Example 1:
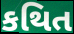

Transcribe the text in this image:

કથિત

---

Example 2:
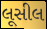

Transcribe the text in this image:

લૂસીલ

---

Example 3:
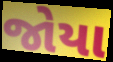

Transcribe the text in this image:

જોયા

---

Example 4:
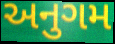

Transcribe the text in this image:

અનુગમ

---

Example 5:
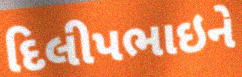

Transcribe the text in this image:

દિલીપભાઇને